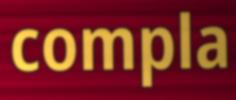
compla